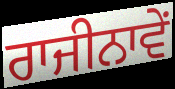
ਰਾਜੀਨਾਵੇਂ